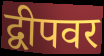
द्वीपवर